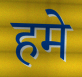
हमे